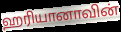
ஹரியானாவின்